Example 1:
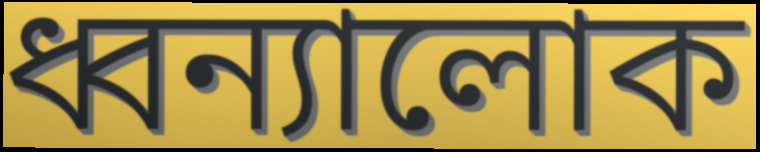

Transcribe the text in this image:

ধ্বন্যালোক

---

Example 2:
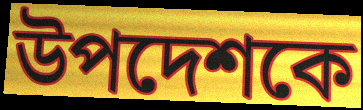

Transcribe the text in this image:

উপদেশকে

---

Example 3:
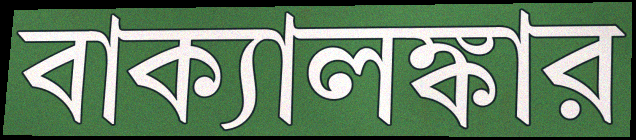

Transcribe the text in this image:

বাক্যালঙ্কার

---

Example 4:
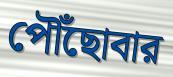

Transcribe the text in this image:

পৌঁছোবার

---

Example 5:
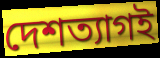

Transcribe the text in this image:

দেশত্যাগই